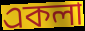
একলা